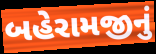
બહેરામજીનું